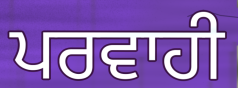
ਪਰਵਾਹੀ